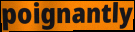
poignantly